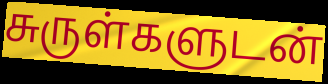
சுருள்களுடன்